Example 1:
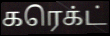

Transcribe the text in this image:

கரெக்ட்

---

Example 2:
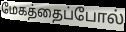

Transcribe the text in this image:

மேகத்தைப்போல்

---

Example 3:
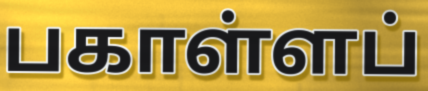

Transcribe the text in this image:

பகாள்ளப்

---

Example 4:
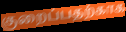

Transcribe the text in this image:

குறைப்பதற்காக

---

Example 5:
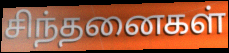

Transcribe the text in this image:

சிந்தனைகள்